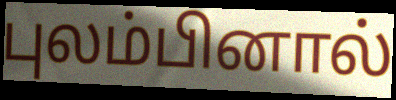
புலம்பினால்